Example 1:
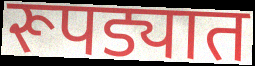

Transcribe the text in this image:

रूपड्यात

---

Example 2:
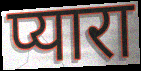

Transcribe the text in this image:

प्यारा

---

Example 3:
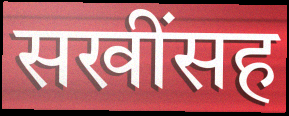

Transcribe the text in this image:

सखींसह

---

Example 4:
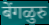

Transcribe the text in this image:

बेंगळुरु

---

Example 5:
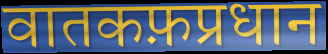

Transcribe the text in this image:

वातकफ़प्रधान